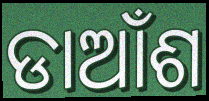
ଡାଆଁଶ